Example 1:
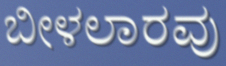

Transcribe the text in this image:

ಬೀಳಲಾರವು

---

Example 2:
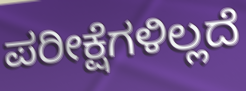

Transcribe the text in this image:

ಪರೀಕ್ಷೆಗಳಿಲ್ಲದೆ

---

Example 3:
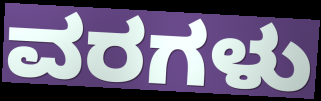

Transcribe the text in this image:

ವರಗಳು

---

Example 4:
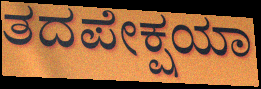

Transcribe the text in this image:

ತದಪೇಕ್ಷಯಾ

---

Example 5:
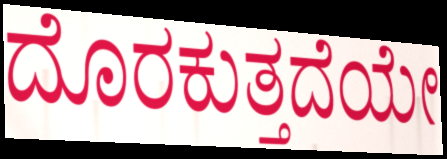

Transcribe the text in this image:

ದೊರಕುತ್ತದೆಯೇ